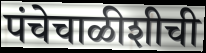
पंचेचाळीशीची